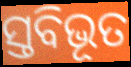
ସ୍ତବିଭୂତ